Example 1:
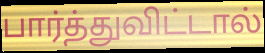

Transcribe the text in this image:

பார்த்துவிட்டால்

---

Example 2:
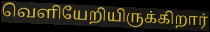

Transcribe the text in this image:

வெளியேறியிருக்கிறார்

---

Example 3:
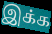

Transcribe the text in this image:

இக்க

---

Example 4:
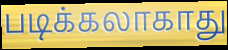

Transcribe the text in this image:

படிக்கலாகாது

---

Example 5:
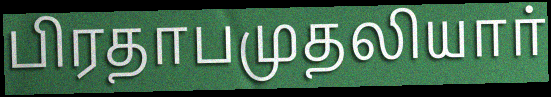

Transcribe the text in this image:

பிரதாபமுதலியார்